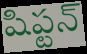
షిప్టన్